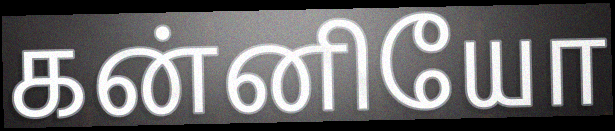
கன்னியோ